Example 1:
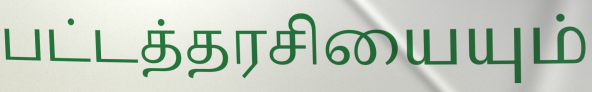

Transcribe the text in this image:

பட்டத்தரசியையும்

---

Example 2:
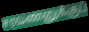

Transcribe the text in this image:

சரவணனுக்குப்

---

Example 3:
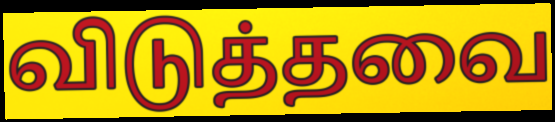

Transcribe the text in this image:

விடுத்தவை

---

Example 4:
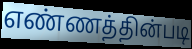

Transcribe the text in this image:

எண்ணத்தின்படி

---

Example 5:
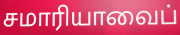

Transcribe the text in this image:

சமாரியாவைப்